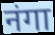
नंगा